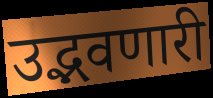
उद्भवणारी